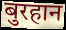
बुरहान